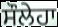
ਸੌਲੇਹਾ